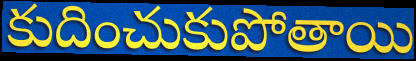
కుదించుకుపోతాయి